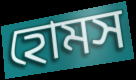
হোমস